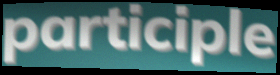
participle